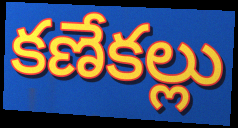
కణేకల్లు